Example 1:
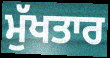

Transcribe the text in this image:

ਮੁੱਖਤਾਰ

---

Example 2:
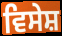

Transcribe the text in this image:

ਵਿਸੇਸ਼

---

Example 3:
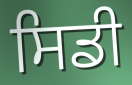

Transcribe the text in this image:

ਸਿਡੀ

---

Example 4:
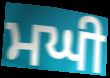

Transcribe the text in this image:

ਮਘੀ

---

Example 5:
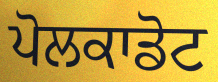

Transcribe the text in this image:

ਪੋਲਕਾਡੋਟ